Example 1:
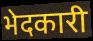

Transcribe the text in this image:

भेदकारी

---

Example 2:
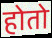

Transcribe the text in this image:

होतो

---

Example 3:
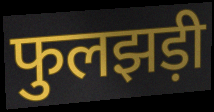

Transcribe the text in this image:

फुलझड़ी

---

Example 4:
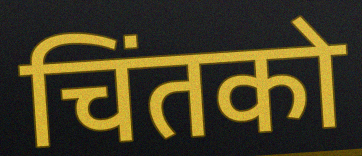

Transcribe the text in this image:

चिंतको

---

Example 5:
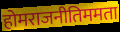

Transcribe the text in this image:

होमराजनीतिममता